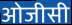
ओजीसी